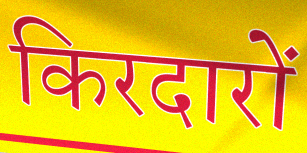
किरदारों